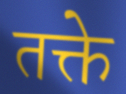
तक्ते